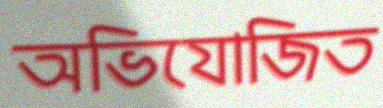
অভিযোজিত